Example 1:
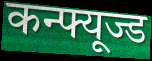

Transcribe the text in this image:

कन्फ्यूज्ड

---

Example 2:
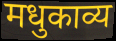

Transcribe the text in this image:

मधुकाव्य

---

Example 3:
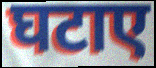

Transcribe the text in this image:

घटाए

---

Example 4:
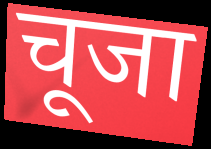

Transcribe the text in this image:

चूजा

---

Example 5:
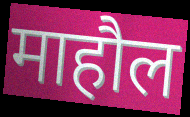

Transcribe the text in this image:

माहौल